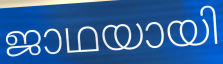
ജാഥയായി